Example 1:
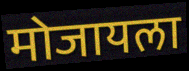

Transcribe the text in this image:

मोजायला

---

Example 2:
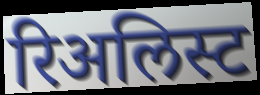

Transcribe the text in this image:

रिअलिस्ट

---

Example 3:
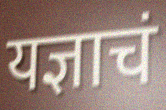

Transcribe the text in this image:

यज्ञाचं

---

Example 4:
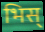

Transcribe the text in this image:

भिस्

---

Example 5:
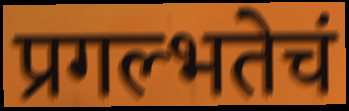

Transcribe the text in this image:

प्रगल्भतेचं